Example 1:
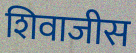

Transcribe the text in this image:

शिवाजीस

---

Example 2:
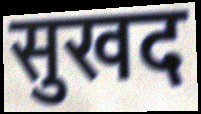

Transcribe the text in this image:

सुखद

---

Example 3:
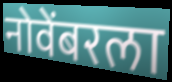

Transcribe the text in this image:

नोवेंबरला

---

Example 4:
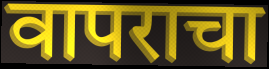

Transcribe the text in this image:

वापराचा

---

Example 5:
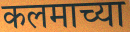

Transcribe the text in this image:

कलमाच्या